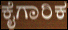
ಕೈಗಾರಿಕ